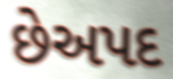
છેઅપદ